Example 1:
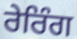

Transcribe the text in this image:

ਰੇਰਿੰਗ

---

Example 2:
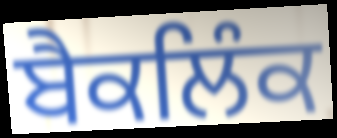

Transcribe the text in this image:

ਬੈਕਲਿੰਕ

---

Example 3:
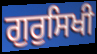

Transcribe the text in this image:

ਗੁਰੁਸਿਖੀ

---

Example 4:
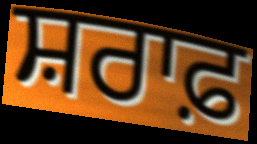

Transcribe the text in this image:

ਸ਼ਰਾਫ਼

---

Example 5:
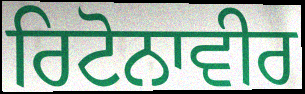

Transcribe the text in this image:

ਰਿਟੋਨਾਵੀਰ